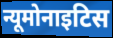
न्यूमोनाइटिस